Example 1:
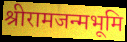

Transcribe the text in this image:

श्रीरामजन्मभूमि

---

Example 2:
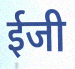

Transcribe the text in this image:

ईजी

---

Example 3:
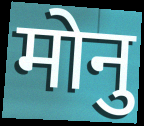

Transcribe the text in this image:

मोनु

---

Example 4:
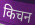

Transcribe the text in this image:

किचन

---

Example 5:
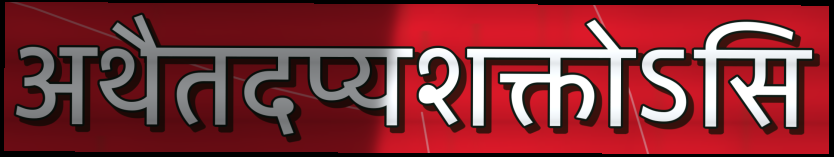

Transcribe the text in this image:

अथैतदप्यशक्तोऽसि